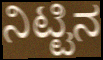
ನಿಟ್ಟಿನ